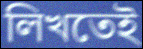
লিখতেই